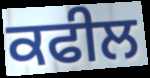
ਕਫੀਲ